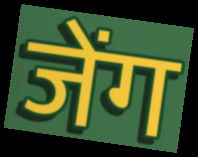
जेंग